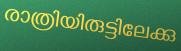
രാത്രിയിരുട്ടിലേക്കു